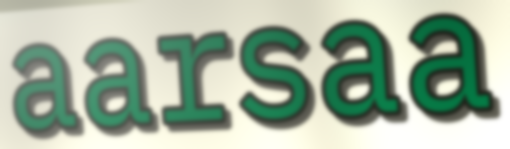
aarsaa